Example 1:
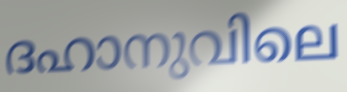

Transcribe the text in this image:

ദഹാനുവിലെ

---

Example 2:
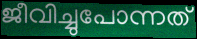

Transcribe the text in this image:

ജീവിച്ചുപോന്നത്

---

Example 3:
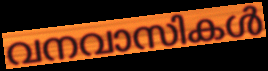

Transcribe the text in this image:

വനവാസികൾ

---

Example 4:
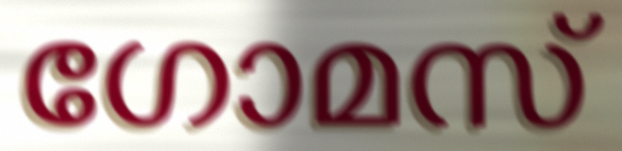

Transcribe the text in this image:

ഗോമസ്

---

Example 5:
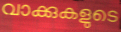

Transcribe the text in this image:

വാക്കുകളുടെ